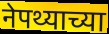
नेपथ्याच्या